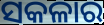
ସକଳାର